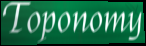
Toponomy